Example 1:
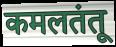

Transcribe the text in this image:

कमलतंतू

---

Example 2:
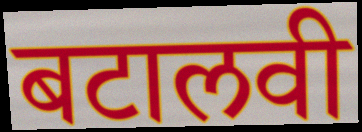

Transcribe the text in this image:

बटालवी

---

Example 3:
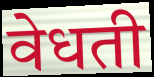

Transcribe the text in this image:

वेधती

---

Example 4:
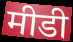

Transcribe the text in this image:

मीडी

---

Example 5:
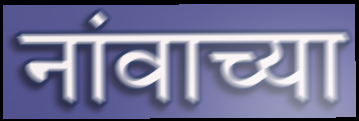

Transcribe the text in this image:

नांवाच्या